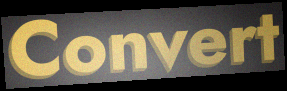
Convert